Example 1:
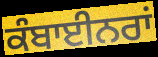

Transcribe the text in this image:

ਕੰਬਾਈਨਰਾਂ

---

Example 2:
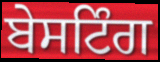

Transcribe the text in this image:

ਬੇਸਟਿੰਗ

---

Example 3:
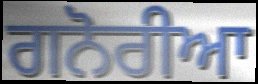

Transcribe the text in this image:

ਗਨੋਰੀਆ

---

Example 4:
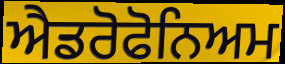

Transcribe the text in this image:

ਐਡਰੋਫੋਨਿਅਮ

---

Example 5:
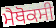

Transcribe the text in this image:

ਮੈਥੋਕਸੀ